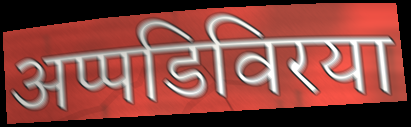
अप्पडिविरया